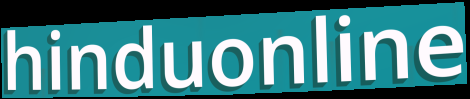
hinduonline